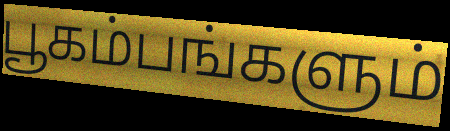
பூகம்பங்களும்